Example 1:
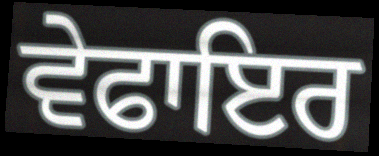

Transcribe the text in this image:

ਵੇਫਾਇਰ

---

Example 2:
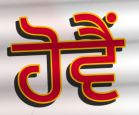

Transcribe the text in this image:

ਹੋਵੈਂ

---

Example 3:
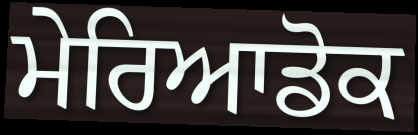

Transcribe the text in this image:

ਮੇਰਿਆਡੋਕ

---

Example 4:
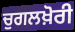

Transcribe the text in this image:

ਚੁਗਲਖ਼ੋਰੀ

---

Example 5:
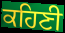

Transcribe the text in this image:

ਕਹਿਣੀ